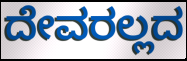
ದೇವರಲ್ಲದ